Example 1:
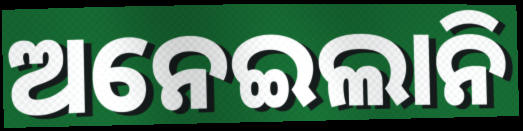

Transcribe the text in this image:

ଅନେଇଲାନି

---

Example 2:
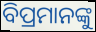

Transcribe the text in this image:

ବିପ୍ରମାନଙ୍କୁ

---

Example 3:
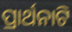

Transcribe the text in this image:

ପ୍ରାର୍ଥନାଟି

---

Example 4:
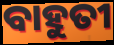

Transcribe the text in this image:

ବାହୁତୀ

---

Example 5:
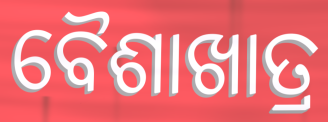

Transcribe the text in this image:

ବୈଶାଖାତ୍ର